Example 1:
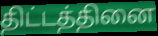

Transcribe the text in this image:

திட்டத்தினை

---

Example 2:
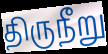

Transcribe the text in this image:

திருநீறு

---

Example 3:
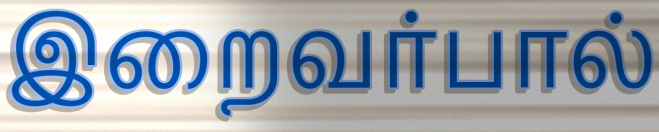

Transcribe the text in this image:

இறைவர்பால்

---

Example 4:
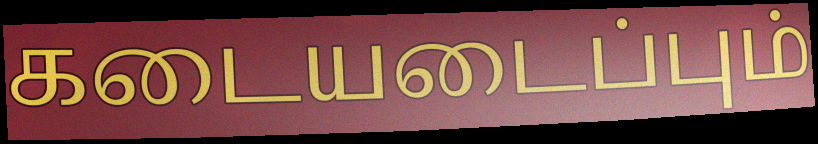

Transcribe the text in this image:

கடையடைப்பும்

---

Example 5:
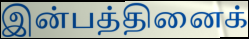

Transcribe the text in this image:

இன்பத்தினைக்